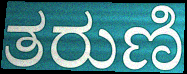
ತರುಣಿ